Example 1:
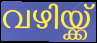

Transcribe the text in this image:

വഴിയ്ക്ക്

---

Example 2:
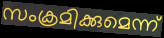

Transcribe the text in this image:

സംക്രമിക്കുമെന്ന്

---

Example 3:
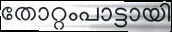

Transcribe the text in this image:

തോറ്റംപാട്ടായി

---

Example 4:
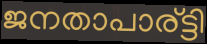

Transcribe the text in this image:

ജനതാപാര്ട്ടി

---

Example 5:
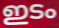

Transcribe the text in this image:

ഇടം